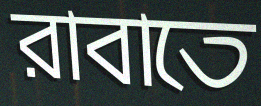
রাবাতে